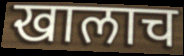
खालाच